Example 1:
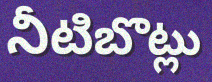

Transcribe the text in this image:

నీటిబొట్లు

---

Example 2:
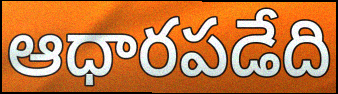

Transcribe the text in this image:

ఆధారపడేది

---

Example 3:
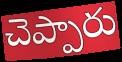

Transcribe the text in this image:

చెప్పారు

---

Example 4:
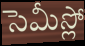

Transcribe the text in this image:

సెమీస్లో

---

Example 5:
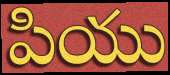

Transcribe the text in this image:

పియు